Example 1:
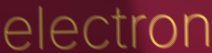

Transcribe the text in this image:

electron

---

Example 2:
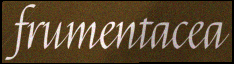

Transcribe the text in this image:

frumentacea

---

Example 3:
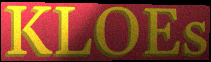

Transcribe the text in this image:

KLOEs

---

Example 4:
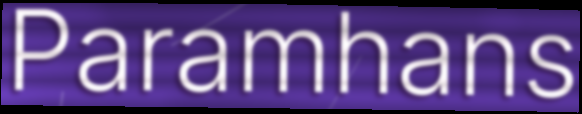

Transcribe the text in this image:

Paramhans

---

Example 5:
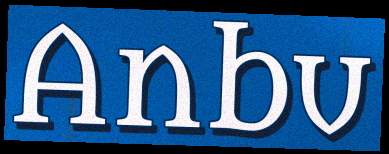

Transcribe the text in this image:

Anbu